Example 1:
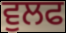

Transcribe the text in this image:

ਵੁਲਫ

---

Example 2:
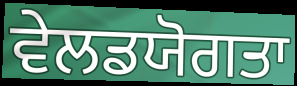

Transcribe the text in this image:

ਵੇਲਡਯੋਗਤਾ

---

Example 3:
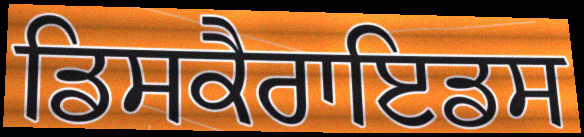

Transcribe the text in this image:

ਡਿਸਕੈਰਾਇਡਸ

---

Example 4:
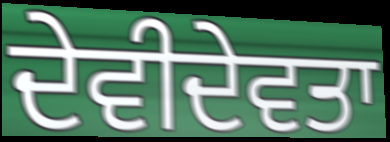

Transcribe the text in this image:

ਦੇਵੀਦੇਵਤਾ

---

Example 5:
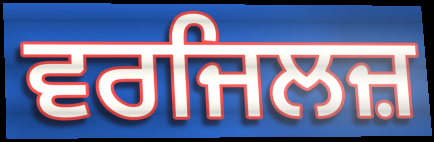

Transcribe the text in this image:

ਵਰਜਿਲਜ਼